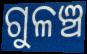
ଗୁଳଞ୍ଚ